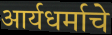
आर्यधर्माचे